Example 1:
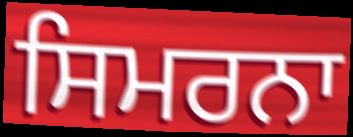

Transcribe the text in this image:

ਸਿਮਰਨਾ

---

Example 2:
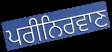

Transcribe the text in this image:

ਪਰੀਨਿਰਵਾਣ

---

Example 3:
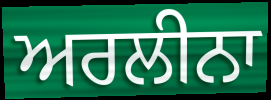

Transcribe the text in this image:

ਅਰਲੀਨਾ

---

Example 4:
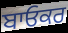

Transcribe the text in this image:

ਬਾਓਕਰ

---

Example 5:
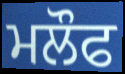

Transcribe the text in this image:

ਮਲੌਫ